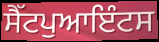
ਸੈੱਟਪੁਆਇੰਟਸ